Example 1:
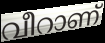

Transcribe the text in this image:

വീറാണ്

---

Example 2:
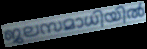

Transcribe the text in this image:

ജലസമാധിയിൽ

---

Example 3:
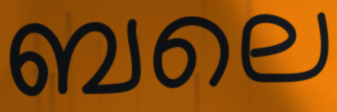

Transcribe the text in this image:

ബലെ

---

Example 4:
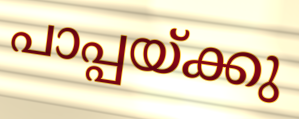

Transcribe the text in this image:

പാപ്പയ്ക്കു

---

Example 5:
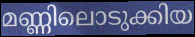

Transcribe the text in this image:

മണ്ണിലൊടുക്കിയ